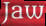
Jaw